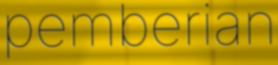
pemberian